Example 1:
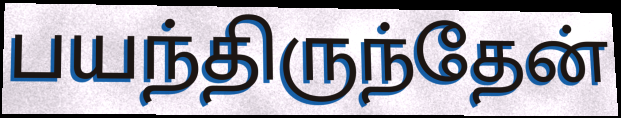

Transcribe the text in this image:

பயந்திருந்தேன்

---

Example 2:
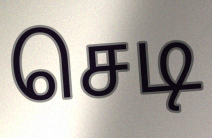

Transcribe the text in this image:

செடி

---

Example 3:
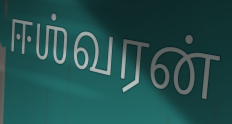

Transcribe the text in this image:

ஈஶ்வரன்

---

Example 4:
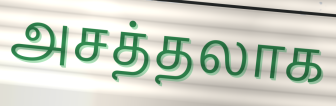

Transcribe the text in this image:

அசத்தலாக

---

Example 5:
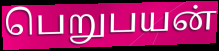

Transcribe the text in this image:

பெறுபயன்